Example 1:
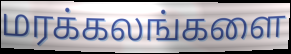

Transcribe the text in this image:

மரக்கலங்களை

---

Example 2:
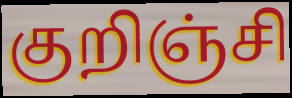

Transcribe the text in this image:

குறிஞ்சி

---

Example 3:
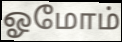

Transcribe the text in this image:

ஓமோம்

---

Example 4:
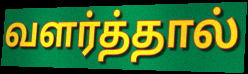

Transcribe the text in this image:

வளர்த்தால்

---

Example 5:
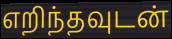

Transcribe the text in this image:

எறிந்தவுடன்